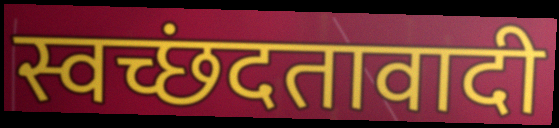
स्वच्छंदतावादी